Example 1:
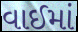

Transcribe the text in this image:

વાઈમાં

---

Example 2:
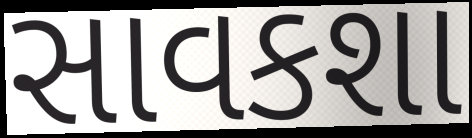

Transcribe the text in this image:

સાવકશા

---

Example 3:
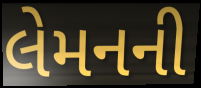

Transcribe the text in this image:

લેમનની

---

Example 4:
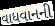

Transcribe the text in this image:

વાધવાનની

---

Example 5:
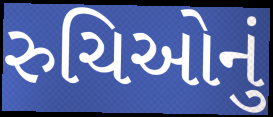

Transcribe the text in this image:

રુચિઓનું